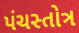
પંચસ્તોત્ર